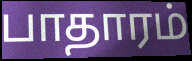
பாதாரம்